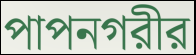
পাপনগরীর